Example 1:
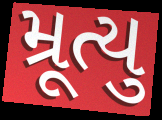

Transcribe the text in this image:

મ્રૂત્યુ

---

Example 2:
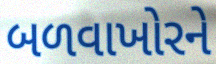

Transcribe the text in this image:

બળવાખોરને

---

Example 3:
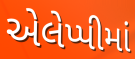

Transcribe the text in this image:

એલેપ્પીમાં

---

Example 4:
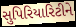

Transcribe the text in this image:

સુપિરિયારિટીને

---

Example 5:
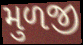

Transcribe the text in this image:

મુળજી